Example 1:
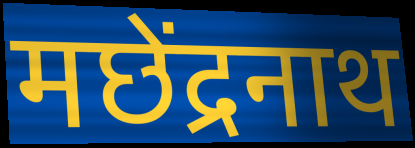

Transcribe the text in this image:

मछेंद्रनाथ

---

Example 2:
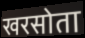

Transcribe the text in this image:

खरसोता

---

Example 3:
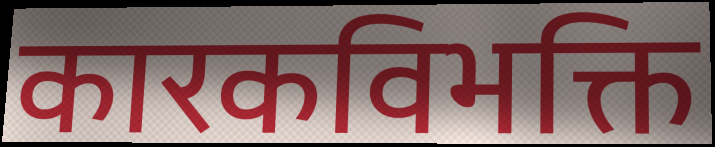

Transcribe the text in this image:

कारकविभक्ति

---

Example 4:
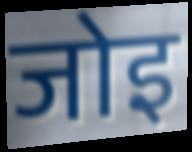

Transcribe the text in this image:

जोइ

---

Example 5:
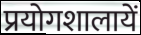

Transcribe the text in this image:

प्रयोगशालायें